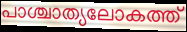
പാശ്ചാത്യലോകത്ത്